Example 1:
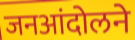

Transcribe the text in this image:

जनआंदोलने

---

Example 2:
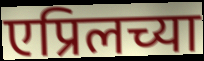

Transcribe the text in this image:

एप्रिलच्या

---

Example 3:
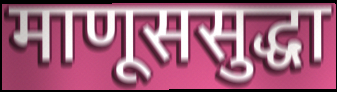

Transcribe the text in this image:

माणूससुद्धा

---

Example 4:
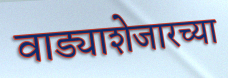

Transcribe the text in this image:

वाड्याशेजारच्या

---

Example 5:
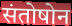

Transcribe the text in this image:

संतोषोन